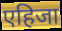
एहिजा